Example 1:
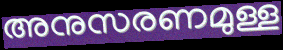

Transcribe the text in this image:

അനുസരണമുള്ള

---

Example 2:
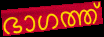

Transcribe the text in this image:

ഭാഗത്ത്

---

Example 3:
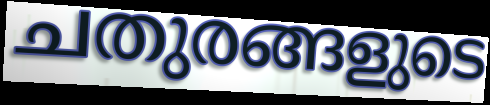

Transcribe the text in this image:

ചതുരങ്ങളുടെ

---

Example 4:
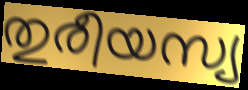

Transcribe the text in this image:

തുരീയസ്യ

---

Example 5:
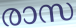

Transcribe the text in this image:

രാസ